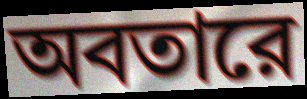
অবতারে